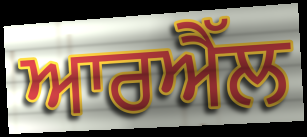
ਆਰਐੱਲ